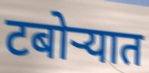
टबोऱ्यात